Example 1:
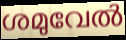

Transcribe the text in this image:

ശമുവേൽ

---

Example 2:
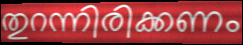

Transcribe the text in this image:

തുറന്നിരിക്കണം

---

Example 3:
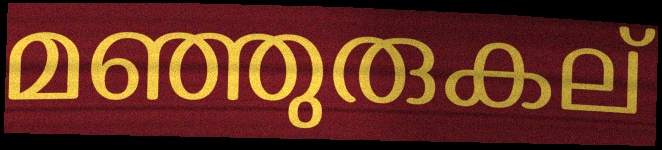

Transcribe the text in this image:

മഞ്ഞുരുകല്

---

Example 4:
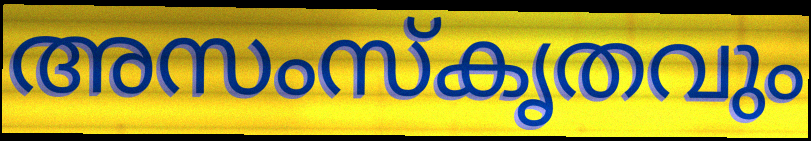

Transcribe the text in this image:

അസംസ്കൃതവും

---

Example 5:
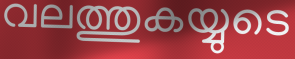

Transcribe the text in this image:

വലത്തുകയ്യുടെ